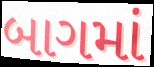
બાગમાં